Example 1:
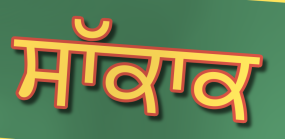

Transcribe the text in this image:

ਸਾੱਕਾਕ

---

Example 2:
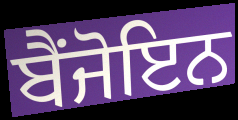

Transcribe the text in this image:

ਬੈਂਜੋਇਨ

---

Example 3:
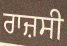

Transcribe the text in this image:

ਰਾਜ਼ਸੀ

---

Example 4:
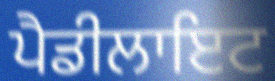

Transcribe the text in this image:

ਪੈਡੀਲਾਇਟ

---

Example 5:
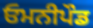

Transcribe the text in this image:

ਓਮਨੀਪੌਡ